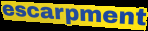
escarpment